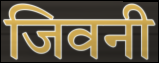
जिवनी